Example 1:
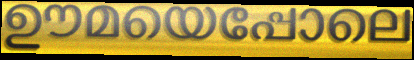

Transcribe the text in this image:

ഊമയെപ്പോലെ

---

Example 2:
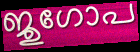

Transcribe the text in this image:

ജുഗോപ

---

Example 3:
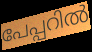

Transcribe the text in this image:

പേപ്പറിൽ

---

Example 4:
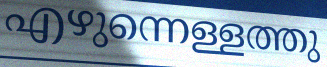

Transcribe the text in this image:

എഴുന്നെള്ളത്തു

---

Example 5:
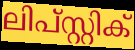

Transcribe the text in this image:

ലിപ്സ്റ്റിക്